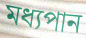
মধ্যপান